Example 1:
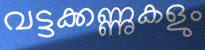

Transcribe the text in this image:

വട്ടക്കണ്ണുകളും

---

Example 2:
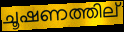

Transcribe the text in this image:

ചൂഷണത്തില്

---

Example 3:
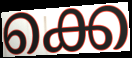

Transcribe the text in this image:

ക്കെ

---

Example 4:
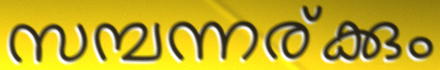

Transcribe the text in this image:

സമ്പന്നര്ക്കും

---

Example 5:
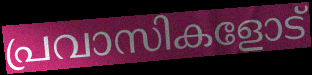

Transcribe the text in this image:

പ്രവാസികളോട്